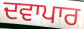
ਦਵਾਪਾਰ